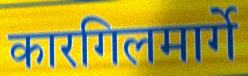
कारगिलमार्गे